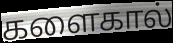
களைகால்